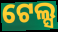
ଟେଲ୍ସ